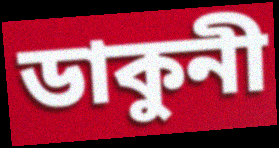
ডাকুনী